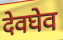
देवघेव